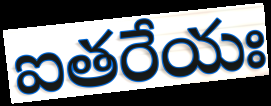
ఐతరేయః